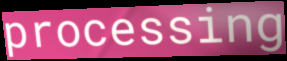
processing